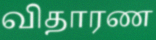
விதாரண